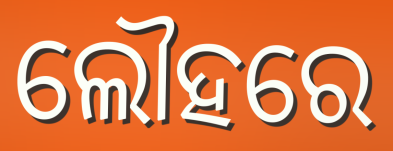
ଲୌହରେ